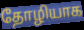
தோழியாக